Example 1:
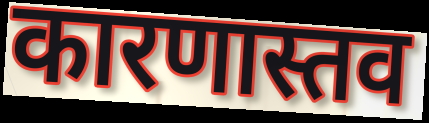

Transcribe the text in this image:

कारणास्तव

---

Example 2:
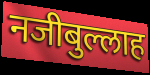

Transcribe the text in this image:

नजीबुल्लाह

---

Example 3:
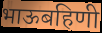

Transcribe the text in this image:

भाऊबहिणी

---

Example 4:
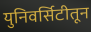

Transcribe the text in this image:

युनिवर्सिटीतून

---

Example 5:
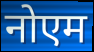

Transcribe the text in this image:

नोएम